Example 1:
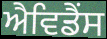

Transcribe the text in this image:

ਐਵਿਡੈਂਸ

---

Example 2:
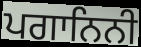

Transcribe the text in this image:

ਪਗਾਨਿਨੀ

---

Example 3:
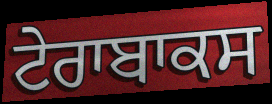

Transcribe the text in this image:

ਟੇਰਾਬਾਕਸ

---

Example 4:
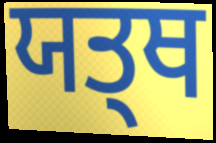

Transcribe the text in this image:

ਯਤ੍ਥ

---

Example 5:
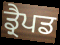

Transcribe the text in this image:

ਡ੍ਰੈਪਡ